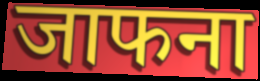
जाफना